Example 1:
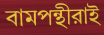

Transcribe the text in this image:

বামপন্থীরাই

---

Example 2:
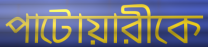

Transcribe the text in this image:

পাটোয়ারীকে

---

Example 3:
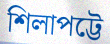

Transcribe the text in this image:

শিলাপট্টে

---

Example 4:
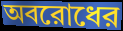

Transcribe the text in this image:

অবরোধের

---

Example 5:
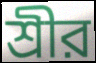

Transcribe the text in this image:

শ্রীর